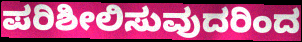
ಪರಿಶೀಲಿಸುವುದರಿಂದ